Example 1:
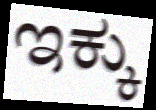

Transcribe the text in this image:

ಇಕ್ಕು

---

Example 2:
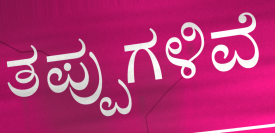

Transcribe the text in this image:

ತಪ್ಪುಗಳಿವೆ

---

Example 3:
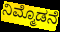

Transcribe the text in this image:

ನಿಮ್ಮೊಡನೆ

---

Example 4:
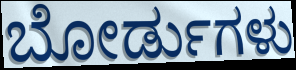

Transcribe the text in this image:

ಬೋರ್ಡುಗಳು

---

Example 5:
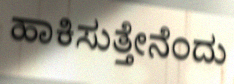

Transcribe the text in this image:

ಹಾಕಿಸುತ್ತೇನೆಂದು